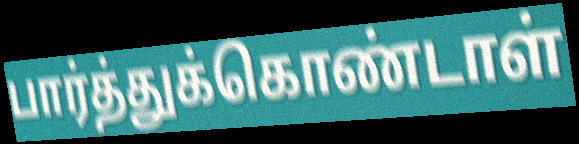
பார்த்துக்கொண்டாள்